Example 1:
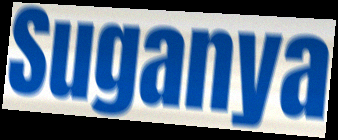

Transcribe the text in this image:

Suganya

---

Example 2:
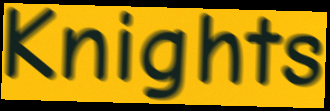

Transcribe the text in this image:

Knights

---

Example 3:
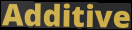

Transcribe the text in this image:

Additive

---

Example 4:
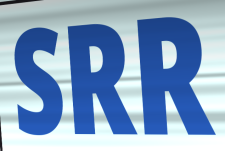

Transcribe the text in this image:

SRR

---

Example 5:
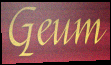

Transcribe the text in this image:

Geum